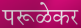
परूळेकर